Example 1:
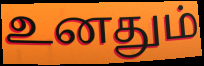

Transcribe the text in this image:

உனதும்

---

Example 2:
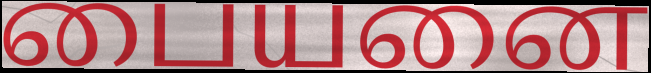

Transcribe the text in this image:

பையனை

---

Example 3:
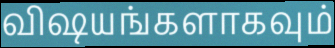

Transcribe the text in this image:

விஷயங்களாகவும்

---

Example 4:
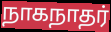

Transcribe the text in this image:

நாகநாதர்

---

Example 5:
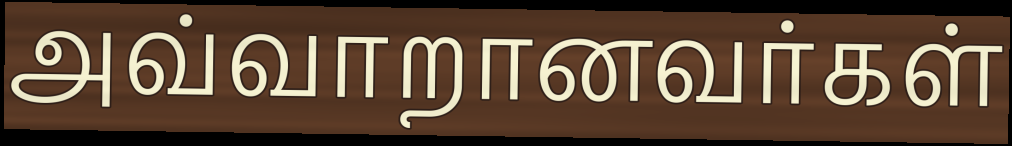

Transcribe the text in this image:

அவ்வாறானவர்கள்